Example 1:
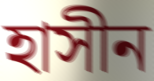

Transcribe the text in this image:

হাসীন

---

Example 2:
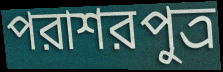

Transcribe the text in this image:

পরাশরপুত্র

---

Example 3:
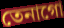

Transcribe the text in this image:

তেনাগো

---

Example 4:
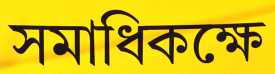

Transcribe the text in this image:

সমাধিকক্ষে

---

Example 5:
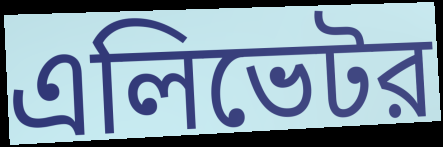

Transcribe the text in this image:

এলিভেটর